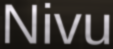
Nivu